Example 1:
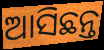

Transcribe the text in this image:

ଆସିଛନ୍ତ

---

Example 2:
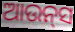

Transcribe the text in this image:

ଆଉନ୍‍ସ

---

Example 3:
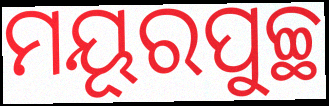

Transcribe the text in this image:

ମୟୂରପୁଚ୍ଛ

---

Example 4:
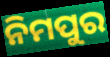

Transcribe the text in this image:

ନିମପୁର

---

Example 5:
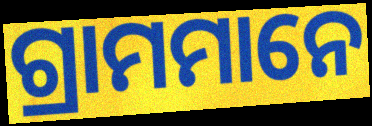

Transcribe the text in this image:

ଗ୍ରାମମାନେ